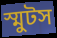
স্মুটস